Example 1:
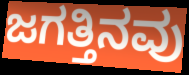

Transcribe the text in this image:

ಜಗತ್ತಿನವು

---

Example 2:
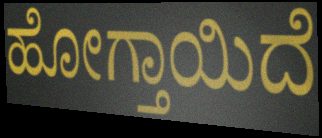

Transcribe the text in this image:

ಹೋಗ್ತಾಯಿದೆ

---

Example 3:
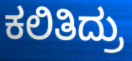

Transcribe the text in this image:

ಕಲಿತಿದ್ರು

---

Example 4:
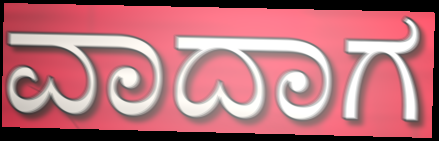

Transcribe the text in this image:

ವಾದಾಗ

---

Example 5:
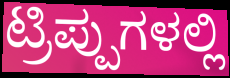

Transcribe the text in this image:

ಟ್ರಿಪ್ಪುಗಳಲ್ಲಿ